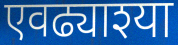
एवढ्याश्या